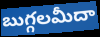
బుగ్గలమీదా